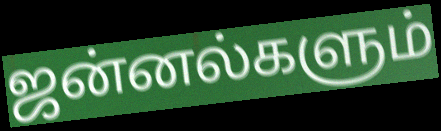
ஜன்னல்களும்